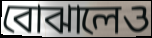
বোঝালেও